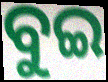
ବୁଇ